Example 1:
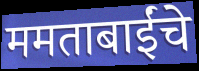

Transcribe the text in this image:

ममताबाईंचे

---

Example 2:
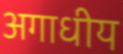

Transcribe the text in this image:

अगाधीय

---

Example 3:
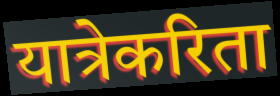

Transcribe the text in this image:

यात्रेकरिता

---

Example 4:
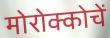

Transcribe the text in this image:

मोरोक्कोचें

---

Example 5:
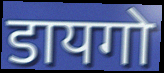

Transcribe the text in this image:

डायगो